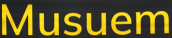
Musuem